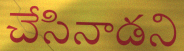
చేసినాడని